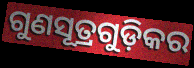
ଗୁଣସୂତ୍ରଗୁଡ଼ିକର